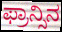
ಫ್ರಾನ್ಸಿನ